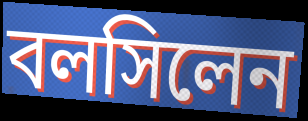
বলসিলেন